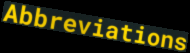
Abbreviations